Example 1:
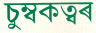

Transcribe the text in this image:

চুম্বকত্বৰ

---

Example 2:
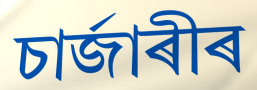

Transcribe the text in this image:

চাৰ্জাৰীৰ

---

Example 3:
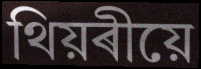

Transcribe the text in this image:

থিয়ৰীয়ে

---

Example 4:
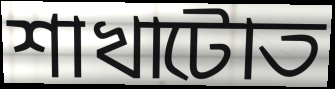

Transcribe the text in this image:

শাখাটোত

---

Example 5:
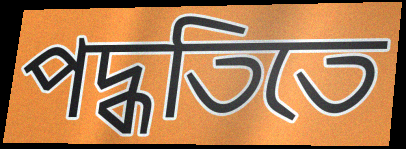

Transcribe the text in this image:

পদ্ধতিতে